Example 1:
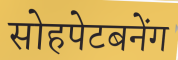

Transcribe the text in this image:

सोहपेटबनेंग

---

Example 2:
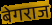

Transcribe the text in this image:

बेगराज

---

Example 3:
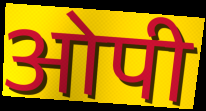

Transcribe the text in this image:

ओपी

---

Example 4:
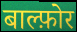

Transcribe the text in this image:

बाल्फ़ोर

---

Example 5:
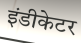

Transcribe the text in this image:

इंडीकेटर